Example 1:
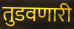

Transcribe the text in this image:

तुडवणारी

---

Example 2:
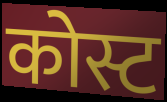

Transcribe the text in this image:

कोस्ट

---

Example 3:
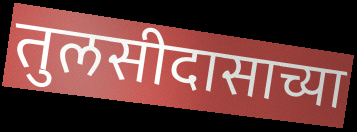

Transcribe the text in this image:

तुलसीदासाच्या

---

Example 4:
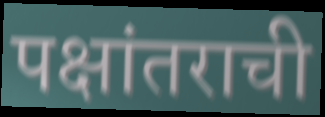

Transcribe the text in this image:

पक्षांतराची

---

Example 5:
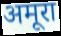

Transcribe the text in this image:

अमूरा